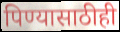
पिण्यासाठीही